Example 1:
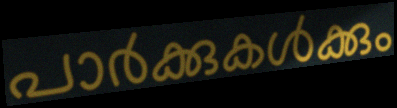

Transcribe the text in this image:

പാർക്കുകൾക്കും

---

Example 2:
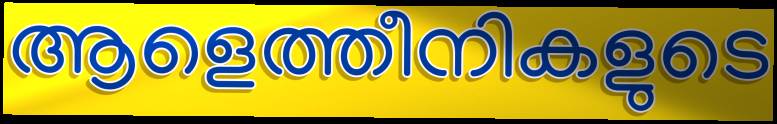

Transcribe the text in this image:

ആളെത്തീനികളുടെ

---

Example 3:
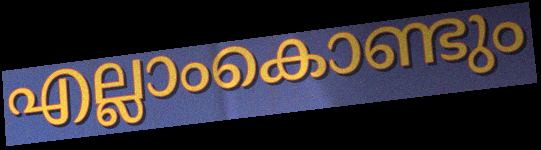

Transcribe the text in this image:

എല്ലാംകൊണ്ടും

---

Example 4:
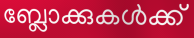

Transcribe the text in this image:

ബ്ലോക്കുകൾക്ക്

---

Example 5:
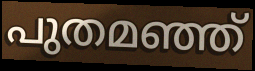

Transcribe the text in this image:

പുതമഞ്ഞ്